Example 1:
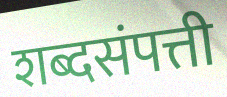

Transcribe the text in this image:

शब्दसंपत्ती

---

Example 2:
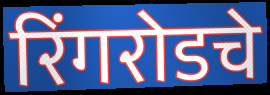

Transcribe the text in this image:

रिंगरोडचे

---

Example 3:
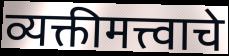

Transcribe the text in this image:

व्यक्तीमत्त्वाचे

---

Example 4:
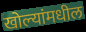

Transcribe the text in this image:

खोल्यांमधील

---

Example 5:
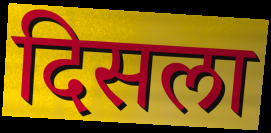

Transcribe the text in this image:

दिसला